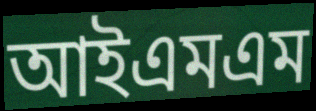
আইএমএম